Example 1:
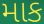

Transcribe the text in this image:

માક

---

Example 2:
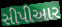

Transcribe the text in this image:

સીપીઆર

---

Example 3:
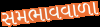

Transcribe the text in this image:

સમભાવવાળા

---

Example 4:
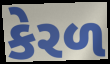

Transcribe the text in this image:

કેરળ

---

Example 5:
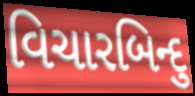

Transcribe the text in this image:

વિચારબિન્દુ